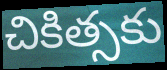
చికిత్సకు